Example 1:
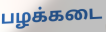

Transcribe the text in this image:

பழக்கடை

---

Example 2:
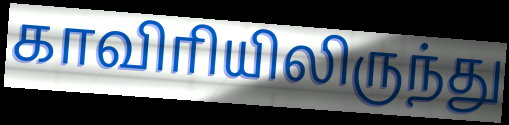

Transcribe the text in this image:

காவிரியிலிருந்து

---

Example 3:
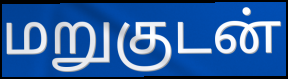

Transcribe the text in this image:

மறுகுடன்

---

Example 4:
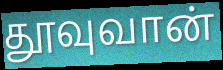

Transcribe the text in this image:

தூவுவான்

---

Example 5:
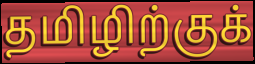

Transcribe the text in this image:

தமிழிற்குக்